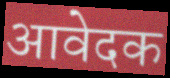
आवेदक